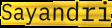
Sayandri